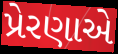
પ્રેરણાએ